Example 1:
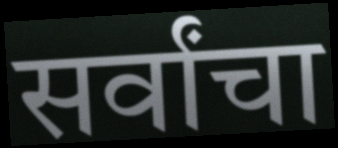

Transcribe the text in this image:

सर्वांचा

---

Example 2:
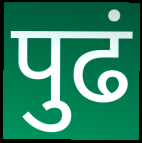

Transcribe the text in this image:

पुढं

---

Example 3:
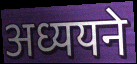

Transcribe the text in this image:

अध्ययने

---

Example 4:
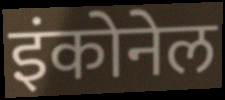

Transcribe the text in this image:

इंकोनेल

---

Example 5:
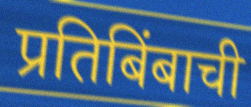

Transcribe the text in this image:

प्रतिबिंबाची